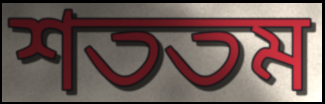
শততম